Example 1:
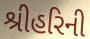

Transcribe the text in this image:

શ્રીહરિની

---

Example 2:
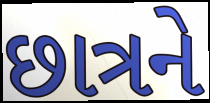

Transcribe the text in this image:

છાત્રને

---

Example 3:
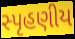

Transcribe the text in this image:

સ્પૃહણીય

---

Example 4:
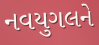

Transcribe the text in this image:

નવયુગલને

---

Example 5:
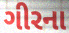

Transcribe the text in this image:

ગીરના